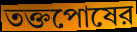
তক্তপোষের